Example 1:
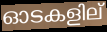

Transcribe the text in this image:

ഓടകളില്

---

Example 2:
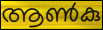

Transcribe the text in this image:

ആൺകു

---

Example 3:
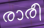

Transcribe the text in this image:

രാരീ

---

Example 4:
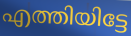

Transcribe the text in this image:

എത്തിയിട്ടേ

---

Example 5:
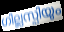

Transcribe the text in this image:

ഗില്ലസ്പിയും